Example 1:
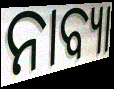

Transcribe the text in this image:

ନାବ୍ୟା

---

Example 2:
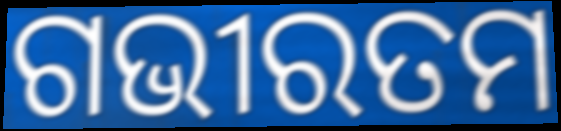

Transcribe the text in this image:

ଗଭୀରତମ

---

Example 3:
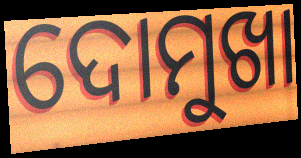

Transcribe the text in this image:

ଦୋମୁଖା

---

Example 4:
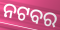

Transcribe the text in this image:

ନଟବର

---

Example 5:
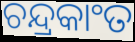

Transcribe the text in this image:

ଚନ୍ଦ୍ରକାଂତ